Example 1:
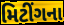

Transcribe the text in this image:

મિટીંગના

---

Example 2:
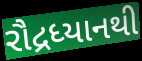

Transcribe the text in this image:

રૌદ્રધ્યાનથી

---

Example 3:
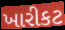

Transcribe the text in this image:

ખારીકટ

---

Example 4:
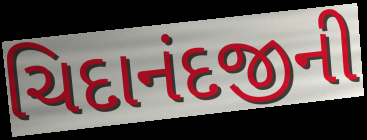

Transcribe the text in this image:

ચિદાનંદજીની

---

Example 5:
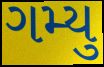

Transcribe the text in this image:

ગમ્યુ